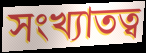
সংখ্যাতত্ব